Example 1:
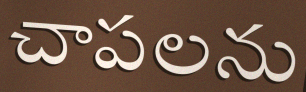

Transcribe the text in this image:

చాపలను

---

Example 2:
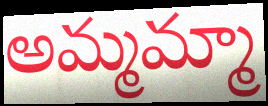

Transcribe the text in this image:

అమ్మమ్మా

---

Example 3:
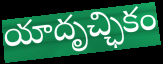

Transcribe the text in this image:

యాదృచ్ఛికం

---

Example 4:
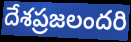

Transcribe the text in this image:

దేశప్రజలందరి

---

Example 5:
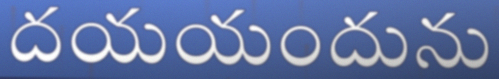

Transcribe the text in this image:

దయయందును